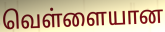
வெள்ளையான